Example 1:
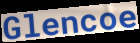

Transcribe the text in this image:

Glencoe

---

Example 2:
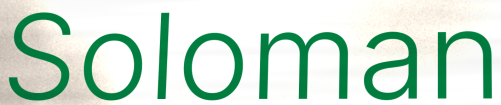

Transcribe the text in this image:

Soloman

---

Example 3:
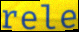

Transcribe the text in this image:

rele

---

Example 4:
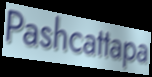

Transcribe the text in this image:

Pashcattapa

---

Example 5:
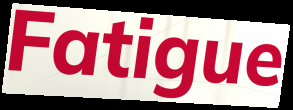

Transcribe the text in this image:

Fatigue